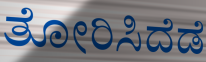
ತೋರಿಸಿದೆಡೆ